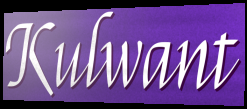
Kulwant